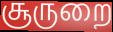
சூருறை